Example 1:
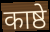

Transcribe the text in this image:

काष्ठे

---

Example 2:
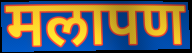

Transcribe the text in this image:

मलापण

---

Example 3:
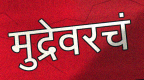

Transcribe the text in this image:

मुद्रेवरचं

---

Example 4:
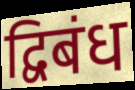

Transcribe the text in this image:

द्विबंध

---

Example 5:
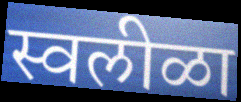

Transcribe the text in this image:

स्वलीळा